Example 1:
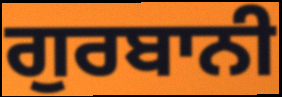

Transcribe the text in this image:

ਗੁਰਬਾਨੀ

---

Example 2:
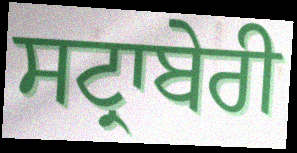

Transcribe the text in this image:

ਸਟ੍ਰਾਬੇਰੀ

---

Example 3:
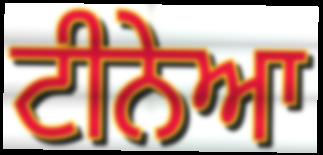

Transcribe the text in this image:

ਟੀਨੇਆ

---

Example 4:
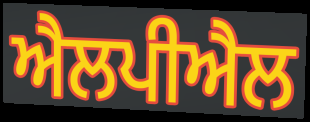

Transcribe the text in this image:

ਐਲਪੀਐਲ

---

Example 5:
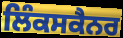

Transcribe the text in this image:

ਲਿੰਕਸਕੈਨਰ